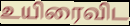
உயிரைவிட